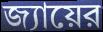
জ্যায়ের